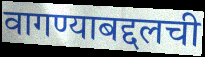
वागण्याबद्दलची